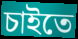
চাইতে